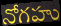
నోగహు